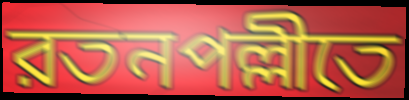
রতনপল্লীতে